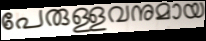
പേരുള്ളവനുമായ